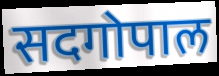
सदगोपाल